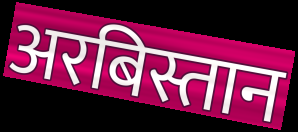
अरबिस्तान